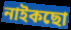
নাইকছো